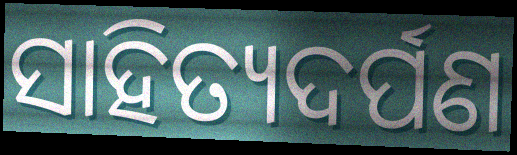
ସାହିତ୍ୟଦର୍ପଣ